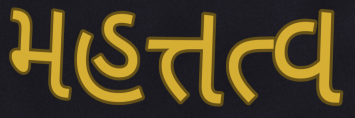
મહત્તત્વ